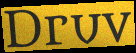
Druv